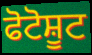
ਫੋਟੋਸ਼ੂਟ